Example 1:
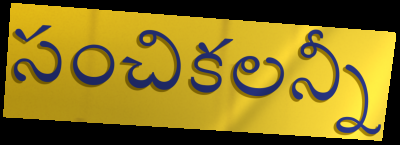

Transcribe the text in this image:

సంచికలన్నీ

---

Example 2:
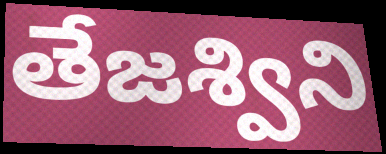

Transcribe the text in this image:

తేజశ్విని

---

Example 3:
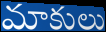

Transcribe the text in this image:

మాకులు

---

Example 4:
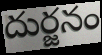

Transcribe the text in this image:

దుర్జనం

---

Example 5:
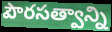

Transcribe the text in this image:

పౌరసత్వాన్ని